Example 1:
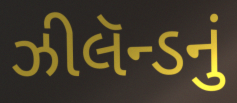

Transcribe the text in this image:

ઝીલૅન્ડનું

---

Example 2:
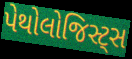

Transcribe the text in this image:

પેથોલોજિસ્ટ્સ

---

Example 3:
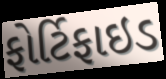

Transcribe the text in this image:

ફોર્ટિફાઇડ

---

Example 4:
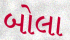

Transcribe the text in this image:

બોલા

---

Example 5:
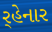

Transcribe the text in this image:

ર્‌હેનાર